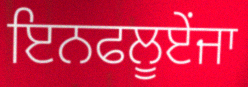
ਇਨਫਲੂਏਂਜਾ